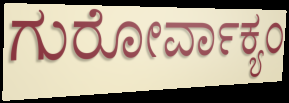
ಗುರೋರ್ವಾಕ್ಯಂ